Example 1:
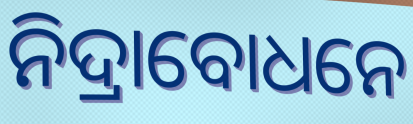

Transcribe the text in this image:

ନିଦ୍ରାବୋଧନେ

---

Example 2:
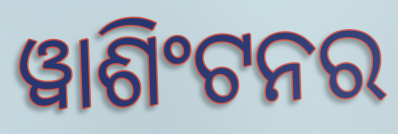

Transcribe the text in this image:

ୱାଶିଂଟନର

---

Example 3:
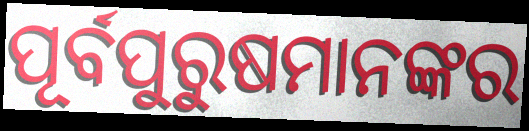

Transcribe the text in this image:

ପୂର୍ବପୁରୁଷମାନଙ୍କର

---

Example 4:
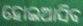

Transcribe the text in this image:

ହୋଇଆସିବ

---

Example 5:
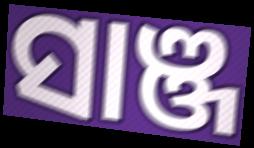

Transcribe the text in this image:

ସାଞ୍ଜ